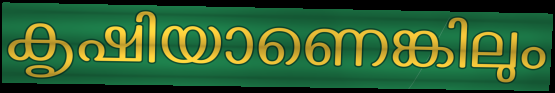
കൃഷിയാണെങ്കിലും